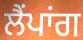
ਲੈਂਪਾਂਗ